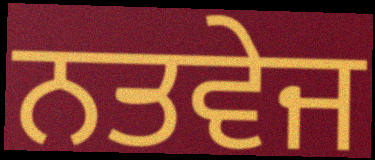
ਨਤਵੇਜ